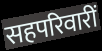
सहपरिवारीं